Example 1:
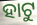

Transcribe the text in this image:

ହାଟୁ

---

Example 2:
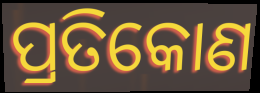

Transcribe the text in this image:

ପ୍ରତିକୋଣ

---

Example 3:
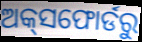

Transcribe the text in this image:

ଅକ୍‌ସଫୋର୍ଡରୁ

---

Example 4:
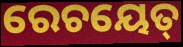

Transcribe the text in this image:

ରେଚୟେତ୍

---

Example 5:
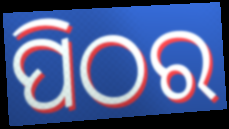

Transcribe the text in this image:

ପିଠର